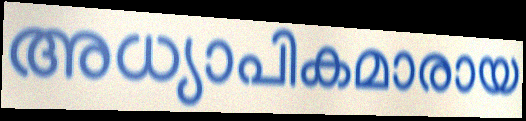
അധ്യാപികമാരായ